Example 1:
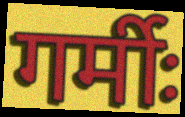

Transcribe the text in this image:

गर्मीः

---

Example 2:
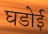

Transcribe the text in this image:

घडोई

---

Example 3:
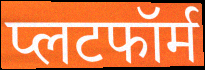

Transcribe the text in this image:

प्लटफॉर्म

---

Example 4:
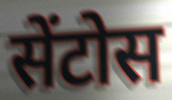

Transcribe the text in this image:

सेंटोस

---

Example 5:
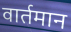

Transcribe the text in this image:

वार्तमान